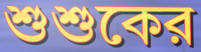
শুশুকের